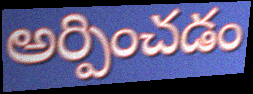
అర్పించడం